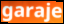
garaje